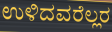
ಉಳಿದವರೆಲ್ಲರ